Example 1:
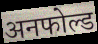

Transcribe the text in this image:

अनफोल्ड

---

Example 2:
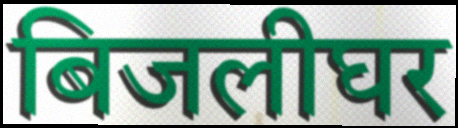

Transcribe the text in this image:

बिजलीघर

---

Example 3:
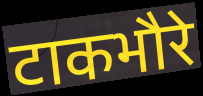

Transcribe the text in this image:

टाकभौरे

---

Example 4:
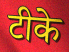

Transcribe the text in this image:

टीके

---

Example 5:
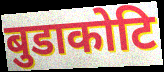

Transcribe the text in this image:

बुडाकोटि